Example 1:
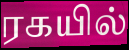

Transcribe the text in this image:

ரகயில்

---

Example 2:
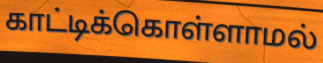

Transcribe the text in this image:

காட்டிக்கொள்ளாமல்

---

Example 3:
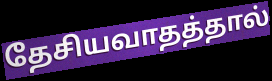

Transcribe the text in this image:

தேசியவாதத்தால்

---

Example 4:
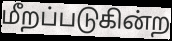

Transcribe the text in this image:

மீறப்படுகின்ற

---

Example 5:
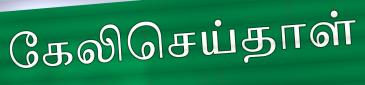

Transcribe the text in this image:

கேலிசெய்தாள்